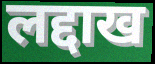
लद्दाख